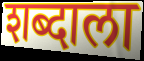
शब्दाला